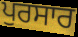
ਪੁਰਸਾਰ